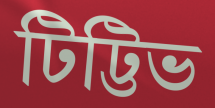
টিট্টিভ